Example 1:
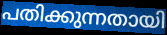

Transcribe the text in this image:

പതിക്കുന്നതായി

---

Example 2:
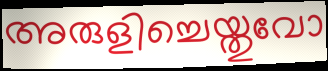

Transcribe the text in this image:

അരുളിച്ചെയ്തുവോ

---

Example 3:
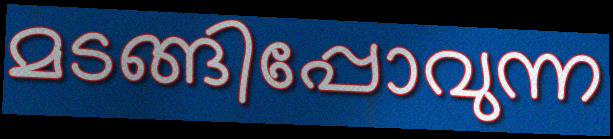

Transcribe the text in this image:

മടങ്ങിപ്പോവുന്ന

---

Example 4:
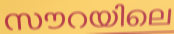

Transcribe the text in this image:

സൗറയിലെ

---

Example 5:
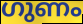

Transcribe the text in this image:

ഗുണം